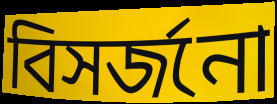
বিসৰ্জনো